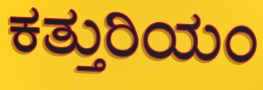
ಕತ್ತುರಿಯಂ